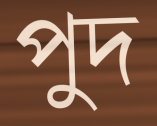
পুদ